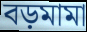
বড়মামা